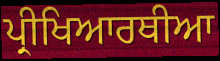
ਪ੍ਰੀਖਿਆਰਥੀਆ